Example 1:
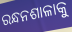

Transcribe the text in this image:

ରନ୍ଧନଶାଳାକୁ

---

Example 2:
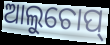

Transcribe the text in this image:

ଆଲୁଚୋପ୍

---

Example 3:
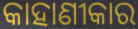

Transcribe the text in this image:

କାହାଣୀକାର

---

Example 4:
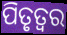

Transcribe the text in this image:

ପିତୃତ୍ୱର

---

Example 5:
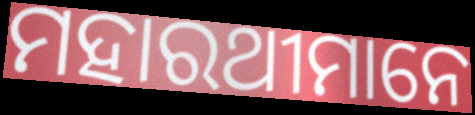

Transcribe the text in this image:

ମହାରଥୀମାନେ